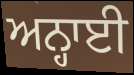
ਅਨ੍ਹਾਈ